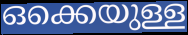
ഒക്കെയുള്ള